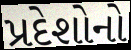
પ્રદેશોનો